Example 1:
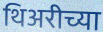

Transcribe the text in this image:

थिअरीच्या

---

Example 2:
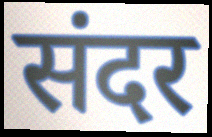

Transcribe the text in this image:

संदर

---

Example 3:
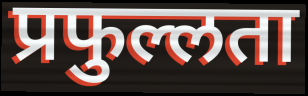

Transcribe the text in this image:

प्रफुल्लता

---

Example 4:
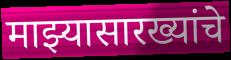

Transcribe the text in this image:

माझ्यासारख्यांचे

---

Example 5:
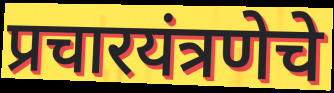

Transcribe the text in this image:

प्रचारयंत्रणेचे